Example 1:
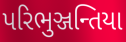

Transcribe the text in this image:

પરિભુઞ્જન્તિયા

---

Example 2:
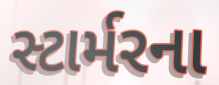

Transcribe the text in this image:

સ્ટાર્મરના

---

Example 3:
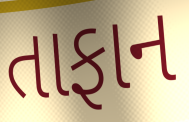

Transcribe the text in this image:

તાફાન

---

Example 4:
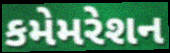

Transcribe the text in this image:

કમેમરેશન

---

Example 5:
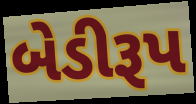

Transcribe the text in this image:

બેડીરૂપ